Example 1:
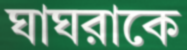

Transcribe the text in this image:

ঘাঘরাকে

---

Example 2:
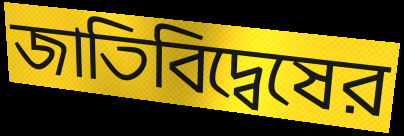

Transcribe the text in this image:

জাতিবিদ্বেষের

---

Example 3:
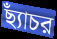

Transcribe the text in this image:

ছ্যাঁচর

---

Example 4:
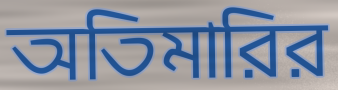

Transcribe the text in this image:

অতিমারির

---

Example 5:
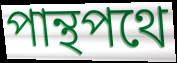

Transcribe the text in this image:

পান্থপথে